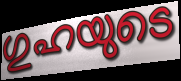
ഗുഹയുടെ